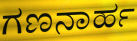
ಗಣನಾರ್ಹ